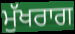
ਮੁੱਖਰਾਗ